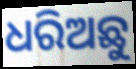
ଧରିଅଛୁ